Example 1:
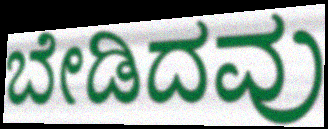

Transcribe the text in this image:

ಬೇಡಿದವು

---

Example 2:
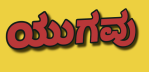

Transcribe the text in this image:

ಯುಗವು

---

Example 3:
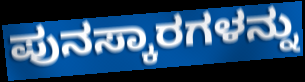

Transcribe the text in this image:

ಪುನಸ್ಕಾರಗಳನ್ನು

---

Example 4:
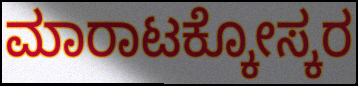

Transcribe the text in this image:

ಮಾರಾಟಕ್ಕೋಸ್ಕರ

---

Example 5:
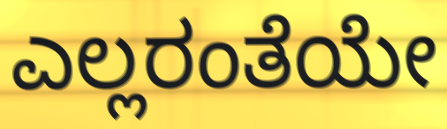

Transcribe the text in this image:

ಎಲ್ಲರಂತೆಯೇ